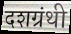
दशग्रंथी